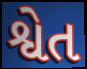
શ્વેત